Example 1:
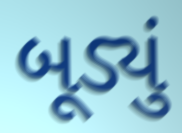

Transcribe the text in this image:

બૂડ્યું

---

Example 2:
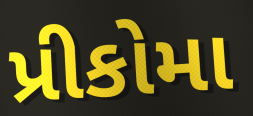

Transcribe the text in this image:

પ્રીકોમા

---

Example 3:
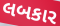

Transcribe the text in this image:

લબકાર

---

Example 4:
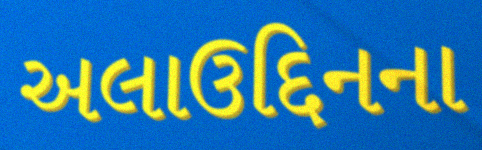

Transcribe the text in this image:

અલાઉદ્દિનના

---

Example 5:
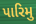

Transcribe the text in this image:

પારિમુ